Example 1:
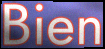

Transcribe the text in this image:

Bien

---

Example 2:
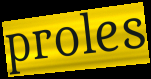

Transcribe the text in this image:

proles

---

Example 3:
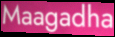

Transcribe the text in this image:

Maagadha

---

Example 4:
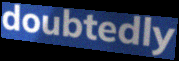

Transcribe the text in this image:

doubtedly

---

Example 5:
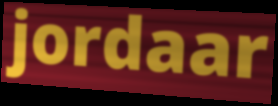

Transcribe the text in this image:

jordaar